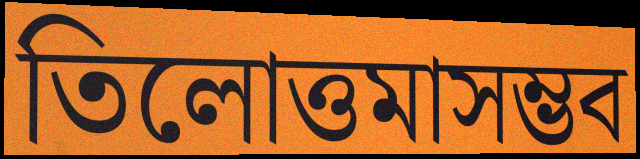
তিলোত্তমাসম্ভব